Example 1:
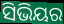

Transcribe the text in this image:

ସିଭିୟର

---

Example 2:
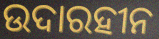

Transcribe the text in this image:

ଉଦାରହୀନ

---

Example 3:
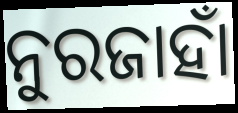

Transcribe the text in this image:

ନୁରଜାହାଁ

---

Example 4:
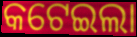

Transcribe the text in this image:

କଟେଇଲା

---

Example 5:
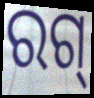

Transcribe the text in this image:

ରଗ୍